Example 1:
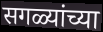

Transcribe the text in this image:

सगळ्यांच्या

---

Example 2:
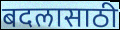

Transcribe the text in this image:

बदलासाठी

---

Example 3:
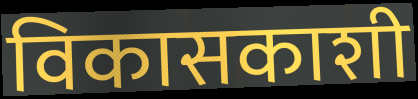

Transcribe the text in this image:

विकासकाशी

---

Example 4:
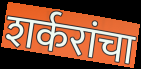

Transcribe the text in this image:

शर्करांचा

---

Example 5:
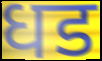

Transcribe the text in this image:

धड